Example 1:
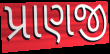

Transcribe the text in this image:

પ્રાણજી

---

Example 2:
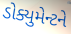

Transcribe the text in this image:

ડોક્યુમેન્ટને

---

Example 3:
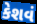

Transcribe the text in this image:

કેશવં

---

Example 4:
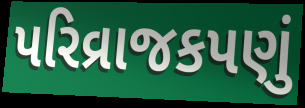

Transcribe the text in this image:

પરિવ્રાજકપણું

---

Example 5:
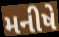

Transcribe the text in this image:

મનીષે